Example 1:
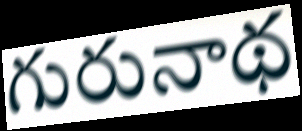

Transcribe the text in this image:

గురునాథ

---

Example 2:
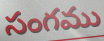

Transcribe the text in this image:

సంగము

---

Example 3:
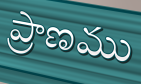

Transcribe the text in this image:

ప్రాణము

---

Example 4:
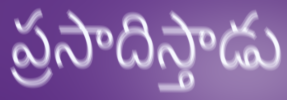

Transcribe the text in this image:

ప్రసాదిస్తాడు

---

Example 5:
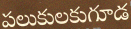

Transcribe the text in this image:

పలుకులకుగూడ